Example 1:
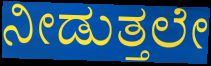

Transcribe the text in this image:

ನೀಡುತ್ತಲೇ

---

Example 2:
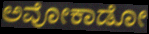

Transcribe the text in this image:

ಅವೋಕಾಡೋ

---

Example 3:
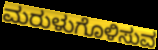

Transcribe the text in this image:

ಮರುಳುಗೊಳಿಸುವ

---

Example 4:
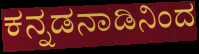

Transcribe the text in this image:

ಕನ್ನಡನಾಡಿನಿಂದ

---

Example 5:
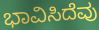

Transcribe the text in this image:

ಭಾವಿಸಿದೆವು